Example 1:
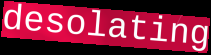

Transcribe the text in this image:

desolating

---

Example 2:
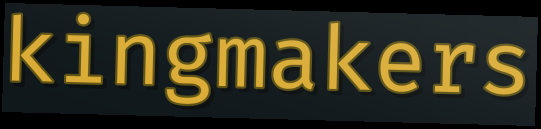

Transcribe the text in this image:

kingmakers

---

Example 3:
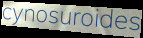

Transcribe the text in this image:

cynosuroides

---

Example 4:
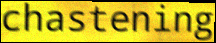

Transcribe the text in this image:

chastening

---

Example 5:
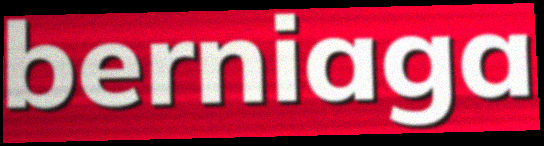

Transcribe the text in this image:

berniaga